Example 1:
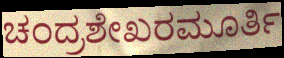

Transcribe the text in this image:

ಚಂದ್ರಶೇಖರಮೂರ್ತಿ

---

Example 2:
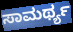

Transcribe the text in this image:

ಸಾಮರ್ಥ್ಯ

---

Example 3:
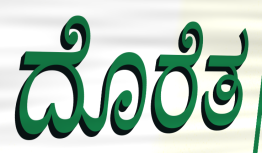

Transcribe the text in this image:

ದೊರೆತ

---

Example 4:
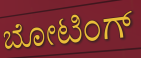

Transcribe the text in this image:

ಬೋಟಿಂಗ್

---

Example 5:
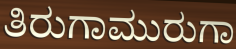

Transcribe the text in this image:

ತಿರುಗಾಮುರುಗಾ